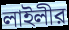
লাইলীর